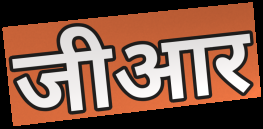
जीआर